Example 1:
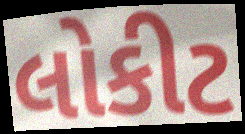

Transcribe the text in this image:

લોકીટ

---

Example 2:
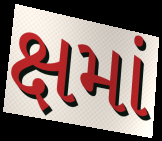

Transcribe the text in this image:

ક્ષમાં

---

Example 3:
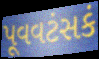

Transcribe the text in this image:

પૂવવટંસકં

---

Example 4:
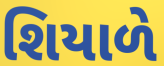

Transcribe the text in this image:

શિયાળે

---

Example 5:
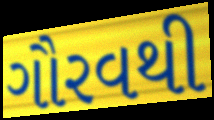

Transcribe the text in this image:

ગૌરવથી